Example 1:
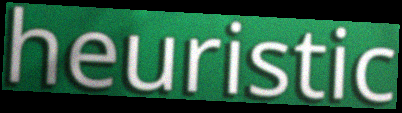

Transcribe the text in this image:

heuristic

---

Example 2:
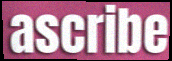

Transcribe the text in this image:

ascribe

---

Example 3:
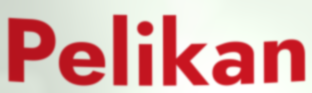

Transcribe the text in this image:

Pelikan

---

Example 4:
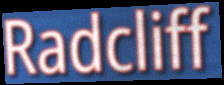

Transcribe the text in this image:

Radcliff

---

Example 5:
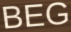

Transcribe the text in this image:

BEG